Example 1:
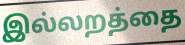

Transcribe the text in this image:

இல்லறத்தை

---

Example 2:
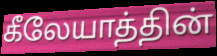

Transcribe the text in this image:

கீலேயாத்தின்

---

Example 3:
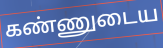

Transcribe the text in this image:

கண்ணுடைய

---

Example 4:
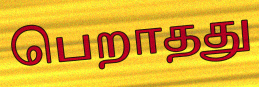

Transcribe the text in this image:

பெறாதது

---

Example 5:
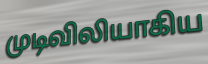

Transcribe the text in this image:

முடிவிலியாகிய